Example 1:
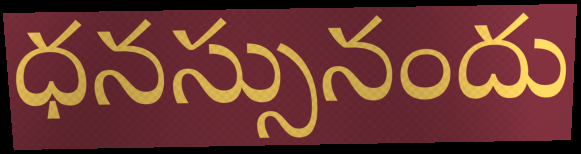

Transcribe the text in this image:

ధనస్సునందు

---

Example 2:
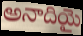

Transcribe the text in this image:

అనాదియై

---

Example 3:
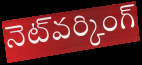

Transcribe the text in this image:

నెట్‌వర్కింగ్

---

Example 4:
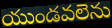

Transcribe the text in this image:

యుండవలెను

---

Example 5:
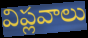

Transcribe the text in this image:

విప్లవాలు